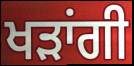
ਖੜਾਂਗੀ